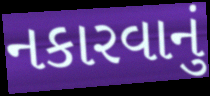
નકારવાનું